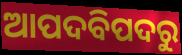
ଆପଦବିପଦରୁ